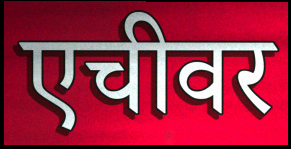
एचीवर